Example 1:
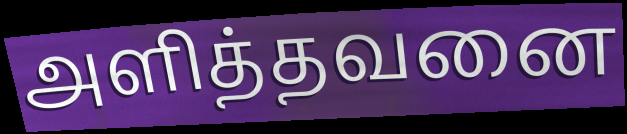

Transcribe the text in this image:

அளித்தவனை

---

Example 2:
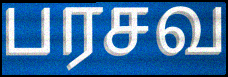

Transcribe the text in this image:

பரசவ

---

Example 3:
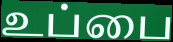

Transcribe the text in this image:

உப்பை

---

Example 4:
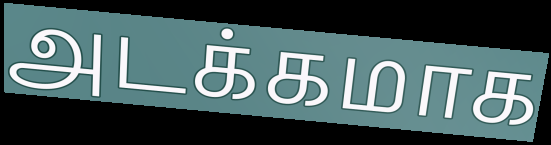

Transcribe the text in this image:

அடக்கமாக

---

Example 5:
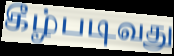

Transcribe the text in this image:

கீழ்படிவது